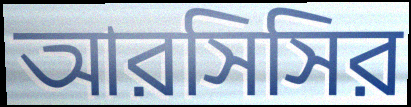
আরসিসির